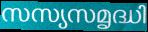
സസ്യസമൃദ്ധി